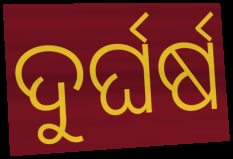
ଦୁର୍ଘର୍ଷ